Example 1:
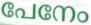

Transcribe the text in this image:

പേനേം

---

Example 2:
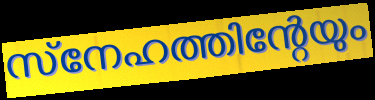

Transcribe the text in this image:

സ്‌നേഹത്തിന്റേയും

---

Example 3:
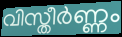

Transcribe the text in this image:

വിസ്തീർണ്ണം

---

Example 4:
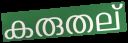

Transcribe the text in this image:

കരുതല്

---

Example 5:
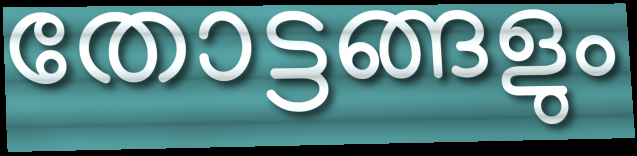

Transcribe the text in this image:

തോട്ടങ്ങളും